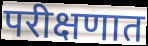
परीक्षणात